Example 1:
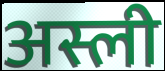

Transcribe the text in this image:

अस्ली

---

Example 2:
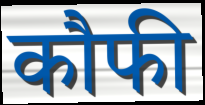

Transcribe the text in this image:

कौफी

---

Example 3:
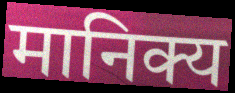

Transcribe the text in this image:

मानिक्य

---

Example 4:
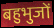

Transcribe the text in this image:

बहुभुजों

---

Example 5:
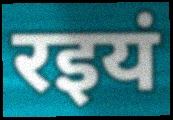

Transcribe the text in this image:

रइयं